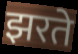
झरते